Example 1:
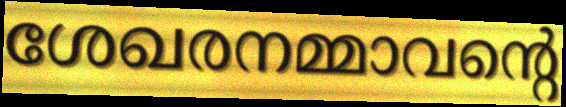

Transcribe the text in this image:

ശേഖരനമ്മാവന്റെ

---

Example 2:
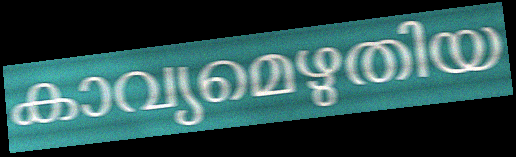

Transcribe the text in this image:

കാവ്യമെഴുതിയ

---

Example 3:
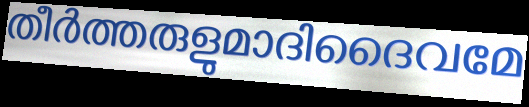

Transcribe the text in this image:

തീർത്തരുളുമാദിദൈവമേ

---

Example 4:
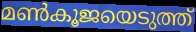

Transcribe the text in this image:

മൺകൂജയെടുത്ത്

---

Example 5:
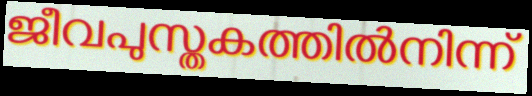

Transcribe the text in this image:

ജീവപുസ്തകത്തിൽനിന്ന്